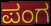
ಪಂಗ